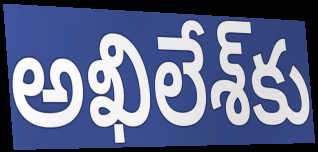
అఖిలేశ్‌కు